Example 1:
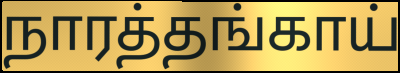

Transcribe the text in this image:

நாரத்தங்காய்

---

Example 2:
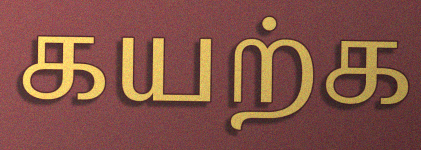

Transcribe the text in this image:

கயற்க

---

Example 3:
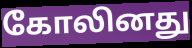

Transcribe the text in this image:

கோலினது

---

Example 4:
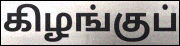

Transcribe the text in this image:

கிழங்குப்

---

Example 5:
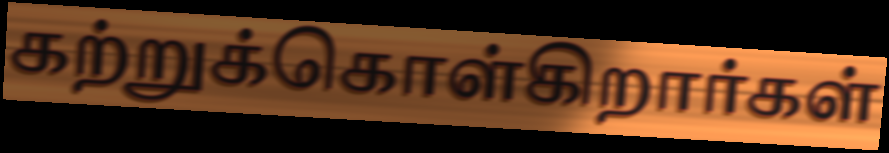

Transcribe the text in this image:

கற்றுக்கொள்கிறார்கள்